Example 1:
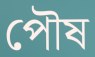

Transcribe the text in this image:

পৌষ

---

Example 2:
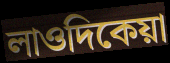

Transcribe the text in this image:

লাওদিকেয়া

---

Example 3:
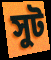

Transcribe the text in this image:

সুট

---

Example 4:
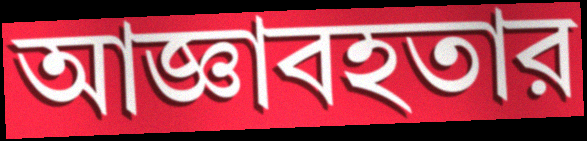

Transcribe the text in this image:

আজ্ঞাবহতার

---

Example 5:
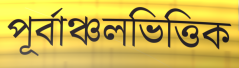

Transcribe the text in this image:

পূর্বাঞ্চলভিত্তিক